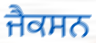
ਜੈਕਸਨ